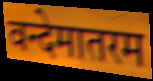
वन्देमातरम